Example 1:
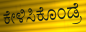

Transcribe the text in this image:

ಕೇಳಿಸಿಕೊಂಡ್ರೆ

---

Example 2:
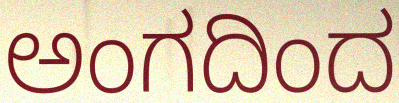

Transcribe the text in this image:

ಅಂಗದಿಂದ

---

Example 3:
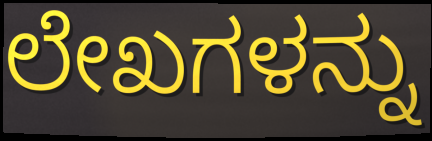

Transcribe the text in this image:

ಲೇಖಗಳನ್ನು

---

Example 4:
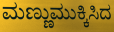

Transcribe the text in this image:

ಮಣ್ಣುಮುಕ್ಕಿಸಿದ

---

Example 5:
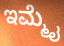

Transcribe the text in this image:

ಇಮ್ಮೈ